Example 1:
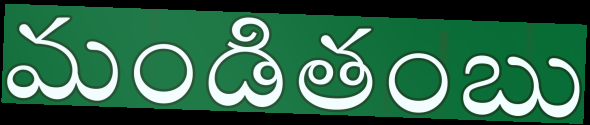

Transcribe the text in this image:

మండితంబు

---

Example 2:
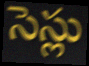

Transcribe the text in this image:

సెస్లు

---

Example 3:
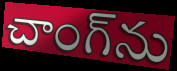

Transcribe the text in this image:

చాంగ్‌ను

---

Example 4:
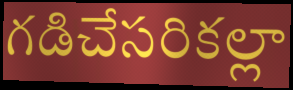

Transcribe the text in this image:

గడిచేసరికల్లా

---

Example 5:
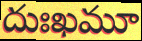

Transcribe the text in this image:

దుఃఖమూ